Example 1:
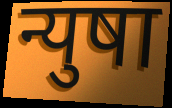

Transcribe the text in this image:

न्युषा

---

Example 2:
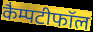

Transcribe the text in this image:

कैम्पटीफॉल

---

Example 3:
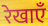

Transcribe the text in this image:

रेखाएँ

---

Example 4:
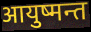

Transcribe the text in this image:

आयुष्मन्त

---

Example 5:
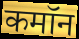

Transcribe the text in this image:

कमॉन